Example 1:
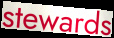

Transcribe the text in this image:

stewards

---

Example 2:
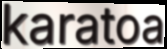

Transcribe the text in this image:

karatoa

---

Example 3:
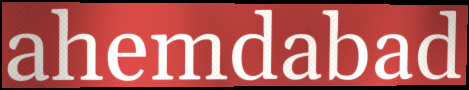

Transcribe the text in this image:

ahemdabad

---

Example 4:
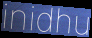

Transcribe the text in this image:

inidhu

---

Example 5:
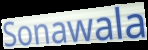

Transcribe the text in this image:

Sonawala